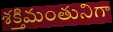
శక్తిమంతునిగా